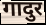
गादुर